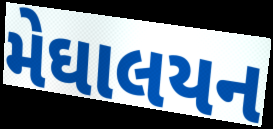
મેઘાલયન